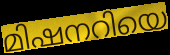
മിഷനറിയെ